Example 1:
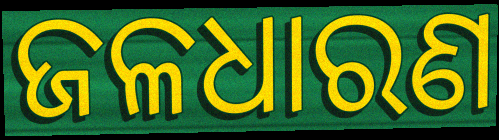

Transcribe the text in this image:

ଜଳଧାରଣ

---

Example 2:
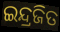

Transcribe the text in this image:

ଇନ୍ଦ୍ରଜିତ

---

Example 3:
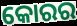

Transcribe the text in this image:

କୋରର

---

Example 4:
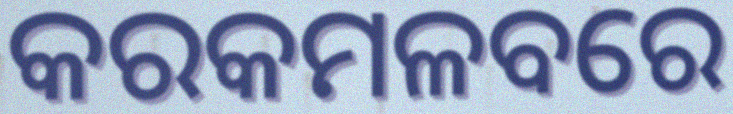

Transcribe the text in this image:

କରକମଳବରେ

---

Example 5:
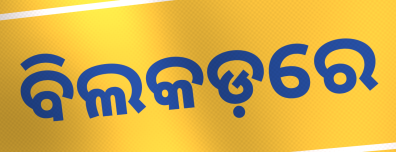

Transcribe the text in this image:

ବିଲକଡ଼ରେ